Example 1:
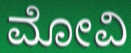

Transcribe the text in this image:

ಮೋವಿ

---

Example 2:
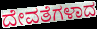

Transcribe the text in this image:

ದೇವತೆಗಳಾದ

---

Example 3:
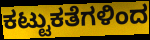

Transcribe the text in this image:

ಕಟ್ಟುಕತೆಗಳಿಂದ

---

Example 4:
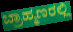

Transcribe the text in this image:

ಬ್ರಾಹ್ಮಣರಲ್ಲಿ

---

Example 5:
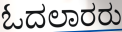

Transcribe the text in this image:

ಓದಲಾರರು